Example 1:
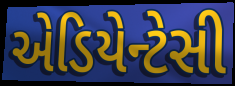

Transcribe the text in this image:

એડિયેન્ટેસી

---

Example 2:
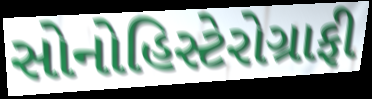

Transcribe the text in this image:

સોનોહિસ્ટેરોગ્રાફી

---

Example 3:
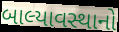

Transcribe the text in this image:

બાલ્યાવસ્થાનો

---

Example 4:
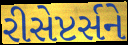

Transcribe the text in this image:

રીસેપ્ટર્સને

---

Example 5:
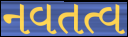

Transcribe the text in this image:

નવતત્વ